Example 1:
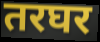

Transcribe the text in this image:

तरघर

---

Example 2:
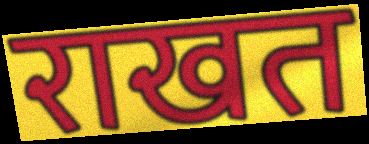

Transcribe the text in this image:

राखत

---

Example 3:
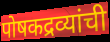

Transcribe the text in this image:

पोषकद्रव्यांची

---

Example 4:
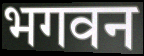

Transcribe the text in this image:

भगवन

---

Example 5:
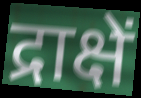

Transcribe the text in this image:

द्राक्षें